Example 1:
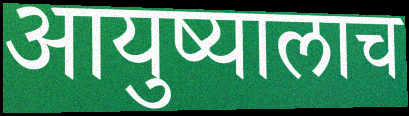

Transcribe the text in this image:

आयुष्यालाच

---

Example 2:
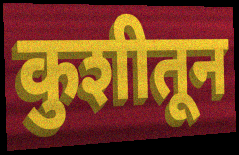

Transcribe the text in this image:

कुशीतून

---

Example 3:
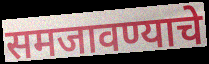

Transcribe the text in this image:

समजावण्याचे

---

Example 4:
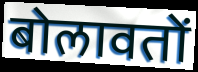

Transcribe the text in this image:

बोलावतों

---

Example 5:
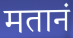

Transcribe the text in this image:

मतानं